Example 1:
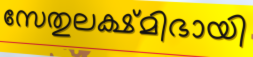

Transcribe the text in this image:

സേതുലക്ഷ്മിഭായി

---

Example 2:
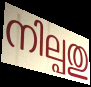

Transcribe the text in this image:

നില്പതു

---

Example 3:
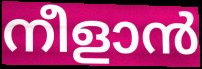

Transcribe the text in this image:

നീളാൻ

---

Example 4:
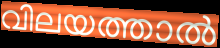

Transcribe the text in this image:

വിലയത്താൽ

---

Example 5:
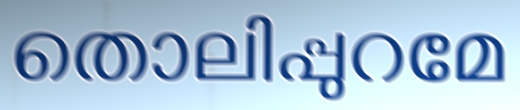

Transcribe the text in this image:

തൊലിപ്പുറമേ